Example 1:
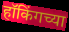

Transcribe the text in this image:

हॉकिंगच्या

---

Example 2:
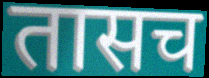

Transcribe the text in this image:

तासच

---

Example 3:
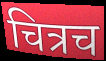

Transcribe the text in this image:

चित्रच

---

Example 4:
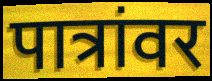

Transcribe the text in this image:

पात्रांवर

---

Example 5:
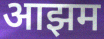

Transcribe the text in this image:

आझम